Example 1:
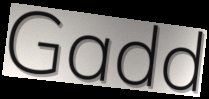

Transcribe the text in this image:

Gadd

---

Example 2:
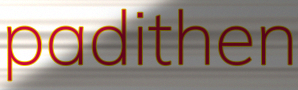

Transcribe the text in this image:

padithen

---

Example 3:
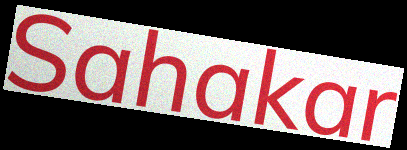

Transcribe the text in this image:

Sahakar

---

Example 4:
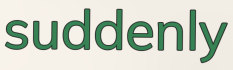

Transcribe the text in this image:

suddenly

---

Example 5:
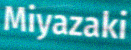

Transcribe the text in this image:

Miyazaki